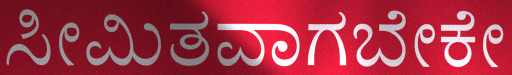
ಸೀಮಿತವಾಗಬೇಕೇ